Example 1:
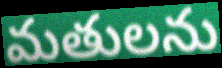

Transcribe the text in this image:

మతులను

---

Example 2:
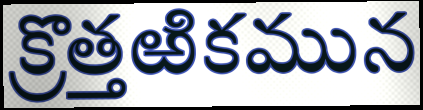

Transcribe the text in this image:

క్రొత్తఱికమున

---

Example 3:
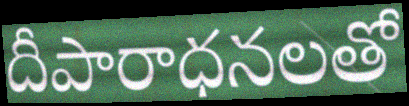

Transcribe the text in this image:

దీపారాధనలతో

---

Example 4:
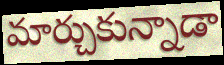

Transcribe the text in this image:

మార్చుకున్నాడా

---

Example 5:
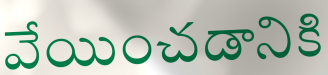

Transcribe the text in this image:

వేయించడానికి